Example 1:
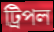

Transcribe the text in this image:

ট্রিপল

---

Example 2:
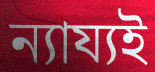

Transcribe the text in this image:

ন্যায্যই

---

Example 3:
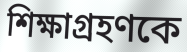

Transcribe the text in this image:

শিক্ষাগ্রহণকে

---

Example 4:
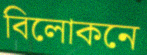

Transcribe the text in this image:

বিলোকনে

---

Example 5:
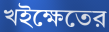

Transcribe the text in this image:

খইক্ষেতের